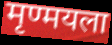
मृण्मयला